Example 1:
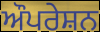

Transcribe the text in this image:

ਔਪਰੇਸ਼ਨ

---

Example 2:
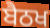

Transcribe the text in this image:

ਬੈਠਖ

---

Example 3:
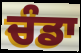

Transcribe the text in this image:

ਚੰਡਾ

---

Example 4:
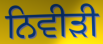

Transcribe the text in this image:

ਨਿਵੀੜੀ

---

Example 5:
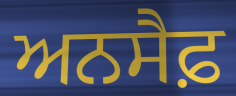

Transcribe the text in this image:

ਅਨਸੈਫ਼